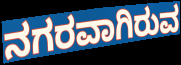
ನಗರವಾಗಿರುವ